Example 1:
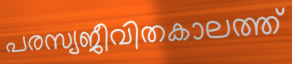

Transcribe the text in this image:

പരസ്യജീവിതകാലത്ത്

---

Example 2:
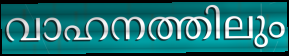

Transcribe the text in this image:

വാഹനത്തിലും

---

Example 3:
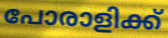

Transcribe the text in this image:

പോരാളിക്ക്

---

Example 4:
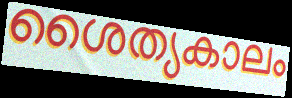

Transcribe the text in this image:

ശൈത്യകാലം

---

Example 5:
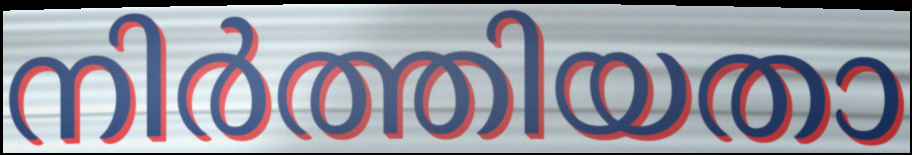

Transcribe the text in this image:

നിർത്തിയതാ